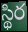
స్థిర